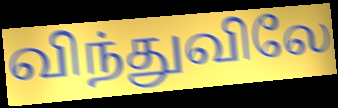
விந்துவிலே